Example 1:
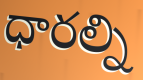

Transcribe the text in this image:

ధారల్ని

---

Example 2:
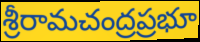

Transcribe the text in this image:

శ్రీరామచంద్రప్రభూ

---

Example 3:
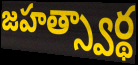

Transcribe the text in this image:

జహత్స్వార్థ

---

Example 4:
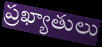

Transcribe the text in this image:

ప్రఖ్యాతులు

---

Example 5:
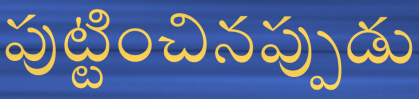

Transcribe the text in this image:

పుట్టించినప్పుడు